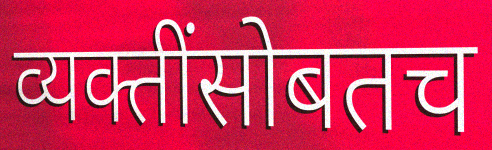
व्यक्तींसोबतच